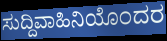
ಸುದ್ದಿವಾಹಿನಿಯೊಂದರ